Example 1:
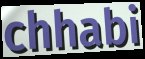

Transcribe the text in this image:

chhabi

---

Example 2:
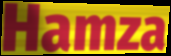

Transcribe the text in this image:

Hamza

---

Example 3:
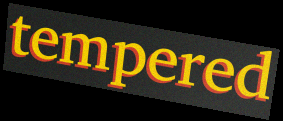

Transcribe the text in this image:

tempered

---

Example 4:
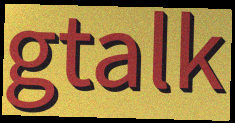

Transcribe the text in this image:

gtalk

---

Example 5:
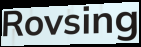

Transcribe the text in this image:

Rovsing